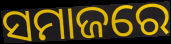
ସମାଜରେ